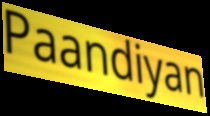
Paandiyan